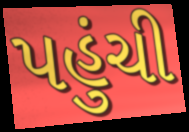
પહુંચી